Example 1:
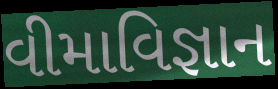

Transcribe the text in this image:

વીમાવિજ્ઞાન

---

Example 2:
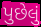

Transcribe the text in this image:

પુછેલું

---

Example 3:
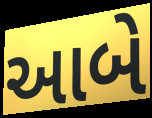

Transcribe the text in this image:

આબે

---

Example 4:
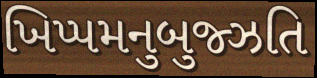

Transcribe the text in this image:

ખિપ્પમનુબુજ્ઝતિ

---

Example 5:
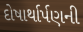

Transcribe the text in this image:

દોષાર્થાર્પણની